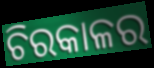
ଚିରକାଳର